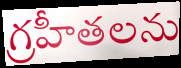
గ్రహీతలను